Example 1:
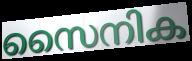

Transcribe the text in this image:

സൈനിക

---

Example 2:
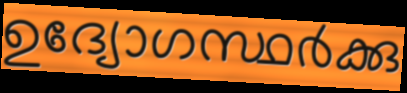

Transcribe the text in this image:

ഉദ്യോഗസ്ഥർക്കു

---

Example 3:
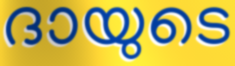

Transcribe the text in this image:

ദായുടെ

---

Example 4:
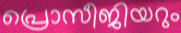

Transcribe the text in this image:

പ്രൊസീജിയറും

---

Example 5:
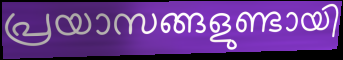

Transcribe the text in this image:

പ്രയാസങ്ങളുണ്ടായി